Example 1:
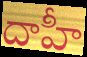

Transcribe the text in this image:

దాహీ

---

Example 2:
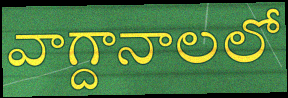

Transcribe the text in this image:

వాగ్దానాలలో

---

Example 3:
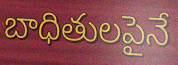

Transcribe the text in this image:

బాధితులపైనే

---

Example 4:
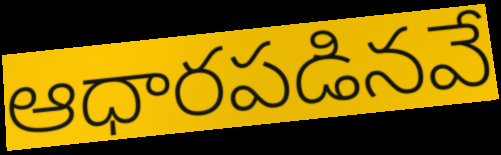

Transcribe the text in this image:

ఆధారపడినవే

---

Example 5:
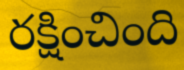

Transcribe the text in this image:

రక్షించింది